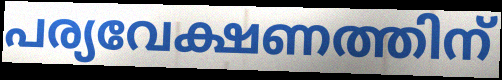
പര്യവേക്ഷണത്തിന്